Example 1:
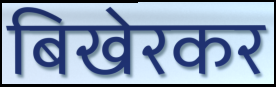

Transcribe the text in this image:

बिखेरकर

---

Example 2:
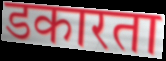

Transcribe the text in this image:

डकारता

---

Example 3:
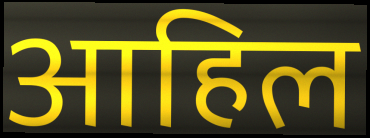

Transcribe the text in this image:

आहिल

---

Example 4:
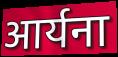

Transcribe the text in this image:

आर्यना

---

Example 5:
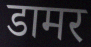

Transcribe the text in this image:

डामर